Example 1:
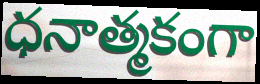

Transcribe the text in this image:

ధనాత్మకంగా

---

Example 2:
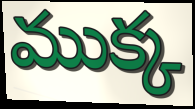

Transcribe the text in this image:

ముక్క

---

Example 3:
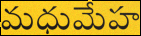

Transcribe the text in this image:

మధుమేహ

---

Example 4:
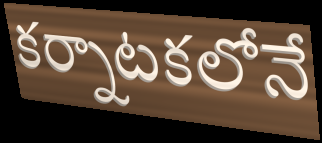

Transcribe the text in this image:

కర్నాటకలోనే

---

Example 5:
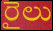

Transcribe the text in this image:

రైలు